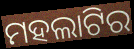
ମହଲାଟିର